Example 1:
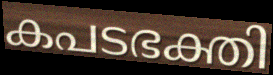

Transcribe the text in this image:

കപടഭക്തി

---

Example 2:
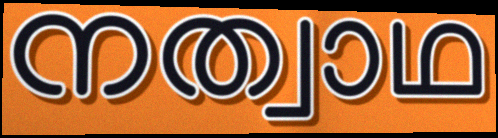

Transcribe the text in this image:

നത്വാഥ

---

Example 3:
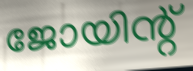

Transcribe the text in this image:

ജോയിന്റ്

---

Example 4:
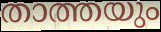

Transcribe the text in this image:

താത്തയും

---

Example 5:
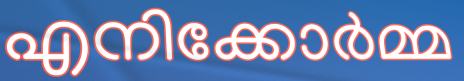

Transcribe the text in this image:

എനിക്കോർമ്മ